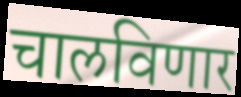
चालविणार